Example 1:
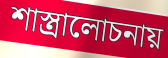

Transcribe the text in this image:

শাস্ত্রালোচনায়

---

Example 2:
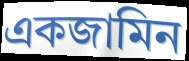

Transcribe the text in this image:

একজামিন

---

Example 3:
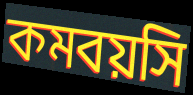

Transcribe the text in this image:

কমবয়সি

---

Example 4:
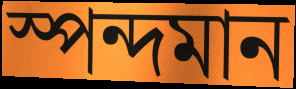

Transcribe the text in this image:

স্পন্দমান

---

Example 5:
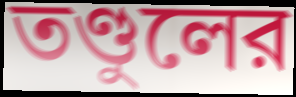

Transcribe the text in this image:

তণ্ডুলের